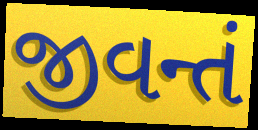
જીવન્તં